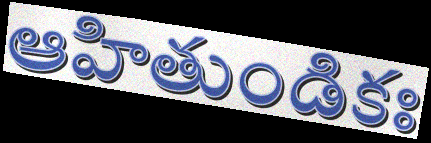
ఆహితుండికః